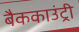
बैककाउंट्री